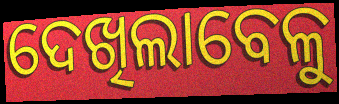
ଦେଖିଲାବେଳୁ